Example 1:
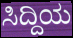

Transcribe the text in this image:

ಸಿದ್ದಿಯ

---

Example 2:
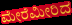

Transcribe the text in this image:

ಮೇರೆಮೀರಿದ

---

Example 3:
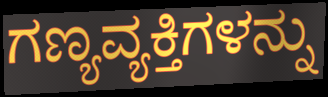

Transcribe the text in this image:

ಗಣ್ಯವ್ಯಕ್ತಿಗಳನ್ನು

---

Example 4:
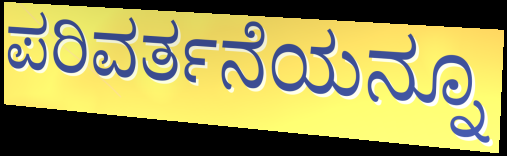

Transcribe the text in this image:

ಪರಿವರ್ತನೆಯನ್ನೂ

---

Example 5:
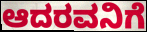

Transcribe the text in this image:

ಆದರವನಿಗೆ